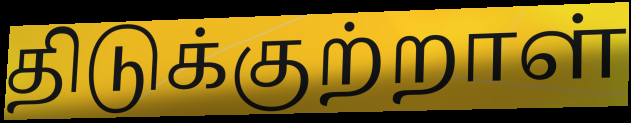
திடுக்குற்றாள்